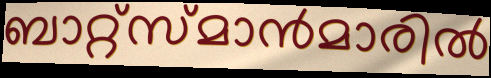
ബാറ്റ്സ്മാൻമാരിൽ